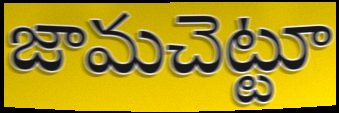
జామచెట్టూ